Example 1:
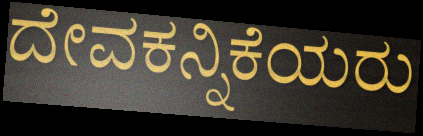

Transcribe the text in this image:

ದೇವಕನ್ನಿಕೆಯರು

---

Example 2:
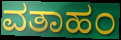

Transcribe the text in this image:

ವತಾಹಂ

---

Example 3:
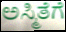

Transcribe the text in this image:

ಅಸ್ಮಿತೆಗೆ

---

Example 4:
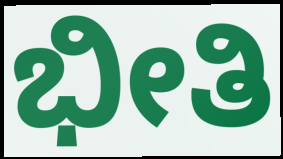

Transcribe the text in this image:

ಭೀತಿ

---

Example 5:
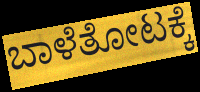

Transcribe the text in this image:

ಬಾಳೆತೋಟಕ್ಕೆ